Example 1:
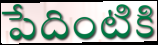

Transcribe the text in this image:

పేదింటికి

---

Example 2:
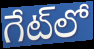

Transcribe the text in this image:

గేట్‌లో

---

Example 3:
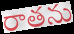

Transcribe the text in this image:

రాతను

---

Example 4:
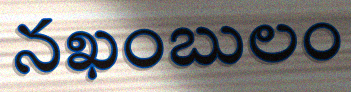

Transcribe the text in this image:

నఖంబులం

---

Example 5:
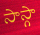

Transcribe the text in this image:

సాస్గా